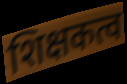
शिक्षकत्व